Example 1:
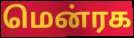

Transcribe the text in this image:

மென்ரக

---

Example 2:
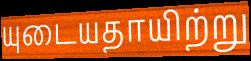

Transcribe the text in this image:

யுடையதாயிற்று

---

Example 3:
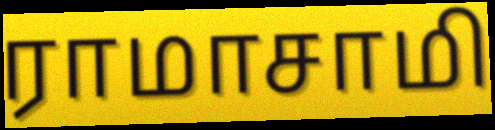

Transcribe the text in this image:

ராமாசாமி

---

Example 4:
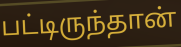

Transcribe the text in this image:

பட்டிருந்தான்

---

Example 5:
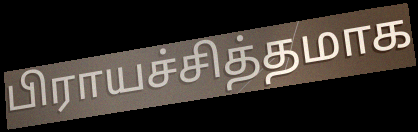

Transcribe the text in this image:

பிராயச்சித்தமாக